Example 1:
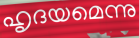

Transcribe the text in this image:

ഹൃദയമെന്നു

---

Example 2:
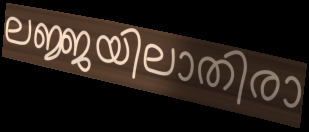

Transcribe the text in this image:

ലജ്ജയിലാതിരാ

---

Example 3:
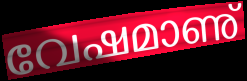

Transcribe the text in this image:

വേഷമാണു്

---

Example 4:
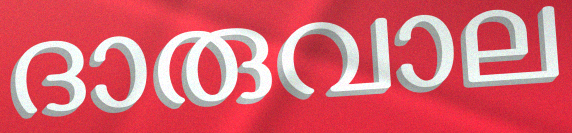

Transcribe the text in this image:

ദാരുവാല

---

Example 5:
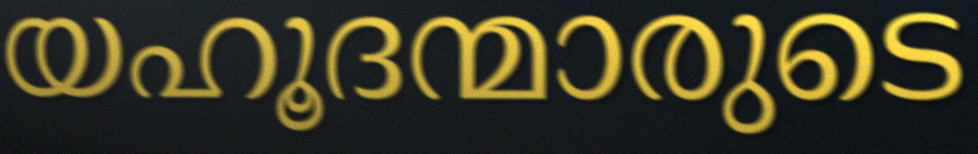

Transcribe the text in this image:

യഹൂദന്മാരുടെ